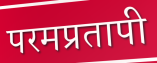
परमप्रतापी